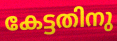
കേട്ടതിനു